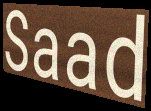
Saad